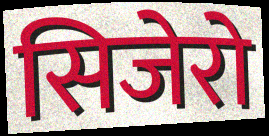
सिजेरो